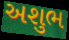
અશુભ